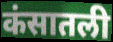
कंसातली